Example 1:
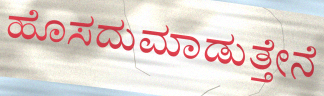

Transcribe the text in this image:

ಹೊಸದುಮಾಡುತ್ತೇನೆ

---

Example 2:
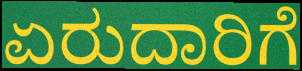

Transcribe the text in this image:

ಏರುದಾರಿಗೆ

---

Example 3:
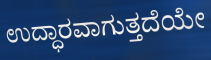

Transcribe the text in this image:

ಉದ್ಧಾರವಾಗುತ್ತದೆಯೇ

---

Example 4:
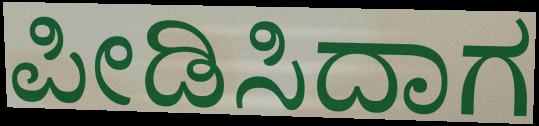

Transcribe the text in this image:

ಪೀಡಿಸಿದಾಗ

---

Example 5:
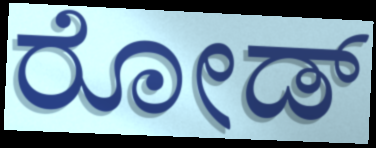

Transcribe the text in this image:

ರೋಡ್